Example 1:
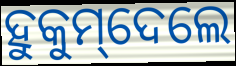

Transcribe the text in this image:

ହୁକୁମ୍‌ଦେଲେ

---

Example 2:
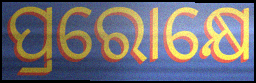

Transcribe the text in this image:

ପ୍ରରୋକ୍ଷେ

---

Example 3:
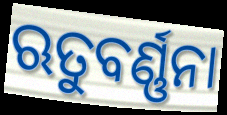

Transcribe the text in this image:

ଋତୁବର୍ଣ୍ଣନା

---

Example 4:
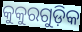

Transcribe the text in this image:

କୁକୁରଗୁଡ଼ିକ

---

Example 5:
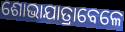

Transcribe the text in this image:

ଶୋଭାଯାତ୍ରାବେଳେ